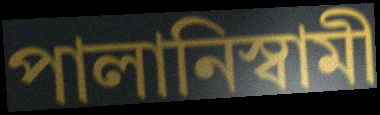
পালানিস্বামী